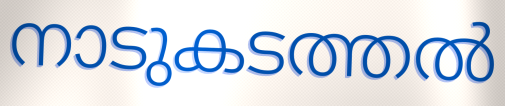
നാടുകടത്തൽ